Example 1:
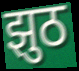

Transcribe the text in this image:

झुठ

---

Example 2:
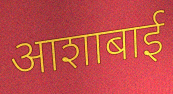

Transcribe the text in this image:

आशाबाई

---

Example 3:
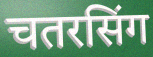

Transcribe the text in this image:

चतरसिंग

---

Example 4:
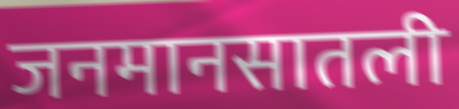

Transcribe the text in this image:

जनमानसातली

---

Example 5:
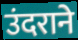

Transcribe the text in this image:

उंदराने